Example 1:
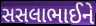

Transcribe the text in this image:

સસલાભાઈને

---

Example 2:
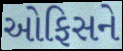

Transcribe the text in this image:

ઓફિસને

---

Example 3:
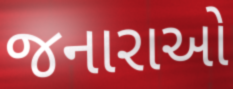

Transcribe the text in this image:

જનારાઓ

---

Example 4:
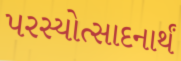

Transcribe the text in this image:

પરસ્યોત્સાદનાર્થં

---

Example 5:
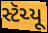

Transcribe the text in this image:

સ્ટૅચ્યૂ